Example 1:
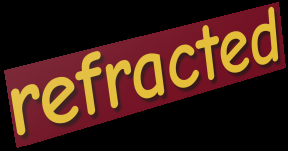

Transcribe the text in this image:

refracted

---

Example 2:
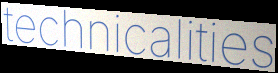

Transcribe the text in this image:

technicalities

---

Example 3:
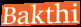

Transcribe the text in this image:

Bakthi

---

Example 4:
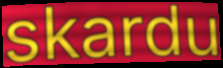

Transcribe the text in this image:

skardu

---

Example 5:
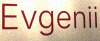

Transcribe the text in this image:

Evgenii